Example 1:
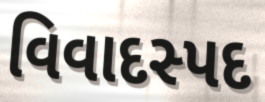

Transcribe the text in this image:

વિવાદસ્પદ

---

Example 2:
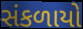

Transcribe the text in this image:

સંકળાયો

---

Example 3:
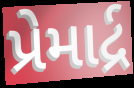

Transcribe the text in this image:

પ્રેમાર્દ્ર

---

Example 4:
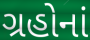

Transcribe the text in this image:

ગ્રહોનાં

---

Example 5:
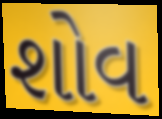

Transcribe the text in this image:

શોવ